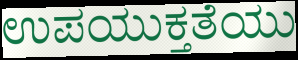
ಉಪಯುಕ್ತತೆಯು